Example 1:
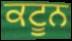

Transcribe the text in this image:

ਕਟੂਨ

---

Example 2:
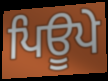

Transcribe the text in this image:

ਪਿਊਪੇ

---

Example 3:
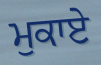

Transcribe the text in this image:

ਮੁਕਾਏ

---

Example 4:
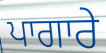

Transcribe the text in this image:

ਪਾਗਾਰੇ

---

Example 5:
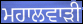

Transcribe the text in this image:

ਮਹਾਲਵਾੜੀ